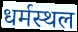
धर्मस्थल